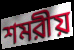
শমরীয়